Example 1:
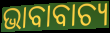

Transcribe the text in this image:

ଭାବାବାଚ୍ୟ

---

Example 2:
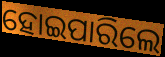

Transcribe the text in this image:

ହୋଇପାରିଲେ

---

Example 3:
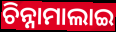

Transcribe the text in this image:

ଚିନ୍ନାମାଲାଇ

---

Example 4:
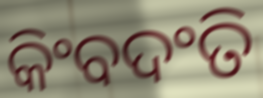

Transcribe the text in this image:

କିଂବଦଂତି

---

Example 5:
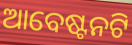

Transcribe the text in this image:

ଆବେଷ୍ଟନଟି